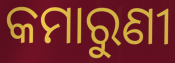
କମାରୁଣୀ